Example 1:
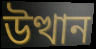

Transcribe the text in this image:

উত্থান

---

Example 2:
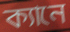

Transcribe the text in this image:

ক্যানে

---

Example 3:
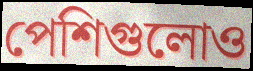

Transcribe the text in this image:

পেশিগুলোও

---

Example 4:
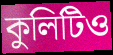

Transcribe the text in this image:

কুলিটিও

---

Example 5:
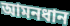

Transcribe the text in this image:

আমনধান